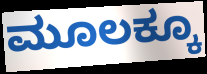
ಮೂಲಕ್ಕೂ